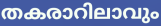
തകരാറിലാവും